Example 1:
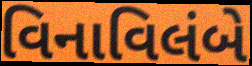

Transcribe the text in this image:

વિનાવિલંબે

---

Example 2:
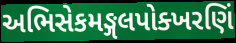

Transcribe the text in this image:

અભિસેકમઙ્ગલપોક્ખરણિં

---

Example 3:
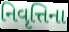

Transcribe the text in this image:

નિવૃત્તિના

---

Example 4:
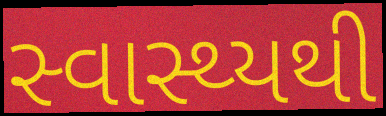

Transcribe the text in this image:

સ્વાસ્થ્યથી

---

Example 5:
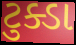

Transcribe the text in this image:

ટુક્ડા